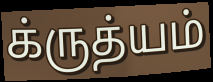
க்ருத்யம்